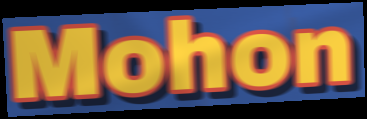
Mohon